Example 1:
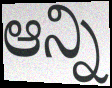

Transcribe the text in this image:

ఆన్ని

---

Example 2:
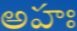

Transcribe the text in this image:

అహః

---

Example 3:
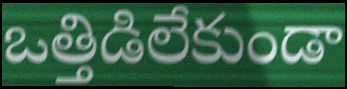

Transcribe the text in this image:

ఒత్తిడిలేకుండా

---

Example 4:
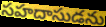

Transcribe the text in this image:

సహదాసుడను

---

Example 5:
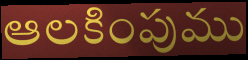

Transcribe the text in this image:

ఆలకింపుము